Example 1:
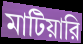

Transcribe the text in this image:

মাটিয়ারি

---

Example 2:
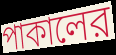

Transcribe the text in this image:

পাকালের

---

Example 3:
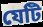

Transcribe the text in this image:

যেটি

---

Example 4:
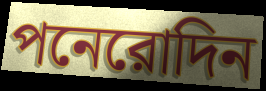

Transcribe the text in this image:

পনেরোদিন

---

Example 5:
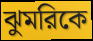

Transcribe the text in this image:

ঝুমরিকে